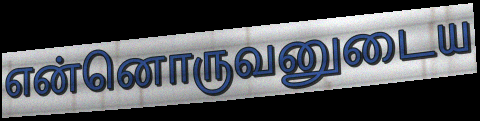
என்னொருவனுடைய